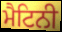
ਮੈਟਿਨੀ